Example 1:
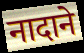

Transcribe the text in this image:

नादाने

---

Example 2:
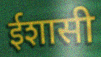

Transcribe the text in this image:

ईशासी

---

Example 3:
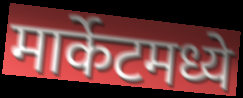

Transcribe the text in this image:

मार्केटमध्ये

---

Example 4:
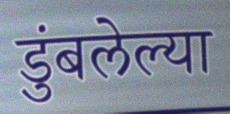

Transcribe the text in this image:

डुंबलेल्या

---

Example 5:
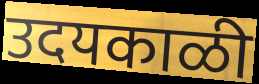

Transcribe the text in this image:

उदयकाळी